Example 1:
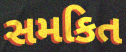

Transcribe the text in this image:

સમકિત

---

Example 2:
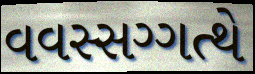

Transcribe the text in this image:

વવસ્સગ્ગત્થે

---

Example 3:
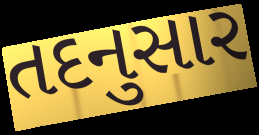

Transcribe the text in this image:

તદનુસાર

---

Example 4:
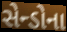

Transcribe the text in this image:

સેન્ડોના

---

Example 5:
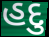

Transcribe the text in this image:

હદુ